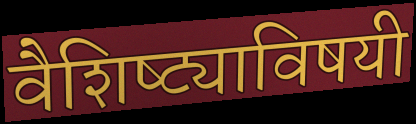
वैशिष्ट्याविषयी